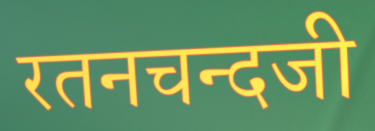
रतनचन्दजी